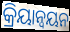
କ୍ରିୟାନ୍ଵୟନ